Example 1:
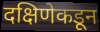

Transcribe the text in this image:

दक्षिणेकडून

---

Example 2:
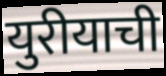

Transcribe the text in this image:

युरीयाची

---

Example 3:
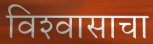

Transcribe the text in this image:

विश्वासाचा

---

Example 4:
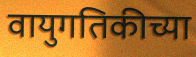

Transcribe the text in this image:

वायुगतिकीच्या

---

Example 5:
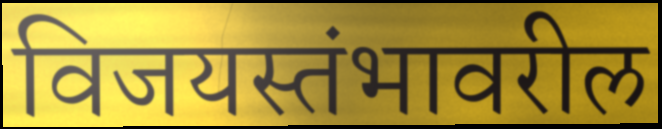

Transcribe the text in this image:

विजयस्तंभावरील